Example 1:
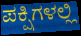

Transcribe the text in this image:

ಪಕ್ಷಿಗಳಲ್ಲಿ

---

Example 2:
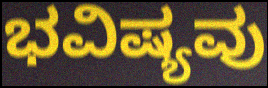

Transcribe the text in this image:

ಭವಿಷ್ಯವು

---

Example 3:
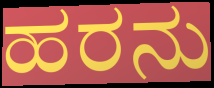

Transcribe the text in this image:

ಹರನು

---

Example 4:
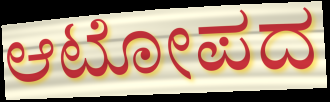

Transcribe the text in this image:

ಆಟೋಪದ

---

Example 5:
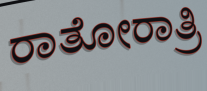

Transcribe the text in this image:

ರಾತೋರಾತ್ರಿ